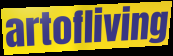
artofliving